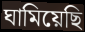
ঘামিয়েছি